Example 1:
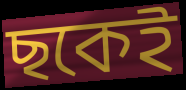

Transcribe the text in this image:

ছকেই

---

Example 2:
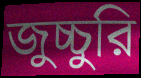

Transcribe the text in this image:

জুচ্চুরি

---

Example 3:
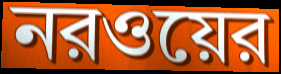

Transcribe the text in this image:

নরওয়ের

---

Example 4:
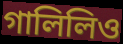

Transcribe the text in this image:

গালিলিও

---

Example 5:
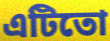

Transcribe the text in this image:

এটিতো